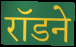
रॉडने